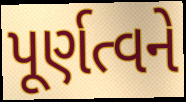
પૂર્ણત્વને